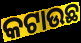
କଟାଉଛ